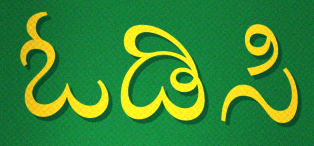
ಓಡಿಸಿ